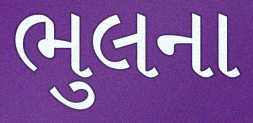
ભુલના